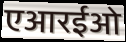
एआरईओ